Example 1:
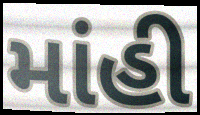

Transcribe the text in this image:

માંહી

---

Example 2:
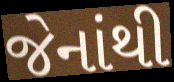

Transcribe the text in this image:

જેનાંથી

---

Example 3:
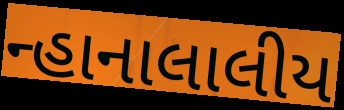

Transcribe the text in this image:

ન્હાનાલાલીય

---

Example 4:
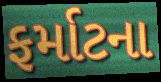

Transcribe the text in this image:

ફર્માટના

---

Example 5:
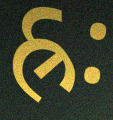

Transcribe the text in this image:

હ્રઃ